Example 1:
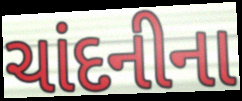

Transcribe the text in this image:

ચાંદનીના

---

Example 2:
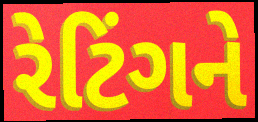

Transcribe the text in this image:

રેટિંગને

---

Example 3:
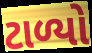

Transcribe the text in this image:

ટાળ્યો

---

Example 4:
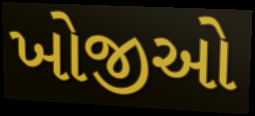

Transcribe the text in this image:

ખોજીઓ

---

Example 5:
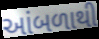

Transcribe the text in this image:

આંબળાથી